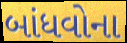
બાંધવોના